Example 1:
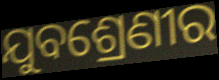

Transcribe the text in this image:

ଯୁବଶ୍ରେଣୀର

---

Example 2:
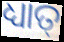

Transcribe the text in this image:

ଧ୍ୟାତ୍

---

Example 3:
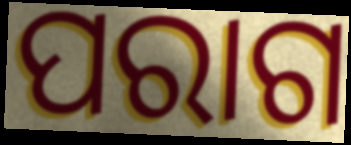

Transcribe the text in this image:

ପରାଗ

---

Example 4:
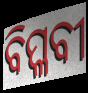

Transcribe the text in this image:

ବିପ୍ଳବୀ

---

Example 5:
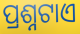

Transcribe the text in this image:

ପ୍ରଶ୍ନଟାଏ